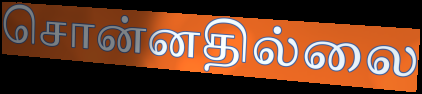
சொன்னதில்லை